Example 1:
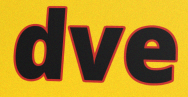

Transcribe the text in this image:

dve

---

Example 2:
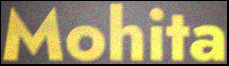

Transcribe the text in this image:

Mohita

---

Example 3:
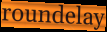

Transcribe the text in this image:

roundelay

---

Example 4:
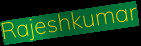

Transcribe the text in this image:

Rajeshkumar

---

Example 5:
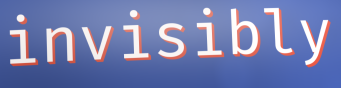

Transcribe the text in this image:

invisibly